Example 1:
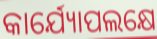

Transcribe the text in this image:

କାର୍ଯ୍ୟୋପଲକ୍ଷେ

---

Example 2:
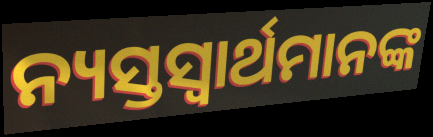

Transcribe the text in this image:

ନ୍ୟସ୍ତସ୍ଵାର୍ଥମାନଙ୍କ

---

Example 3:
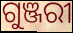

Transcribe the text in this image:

ଗୁଞ୍ଜରୀ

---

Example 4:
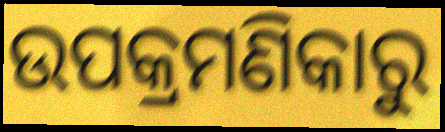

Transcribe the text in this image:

ଉପକ୍ରମଣିକାରୁ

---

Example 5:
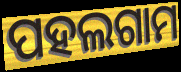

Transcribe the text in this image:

ପହଲଗାମ